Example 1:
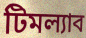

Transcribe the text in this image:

টিমল্যাব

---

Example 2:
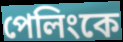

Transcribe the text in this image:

পেলিংকে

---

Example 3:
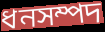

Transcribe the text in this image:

ধনসম্পদ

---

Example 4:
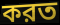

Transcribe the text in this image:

করত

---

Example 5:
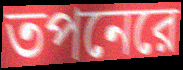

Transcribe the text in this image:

তপনেরে